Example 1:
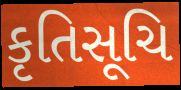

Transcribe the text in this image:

કૃતિસૂચિ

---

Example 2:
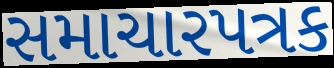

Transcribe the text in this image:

સમાચારપત્રક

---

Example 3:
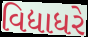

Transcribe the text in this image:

વિદ્યાધરે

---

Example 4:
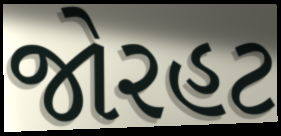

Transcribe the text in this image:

જોરહટ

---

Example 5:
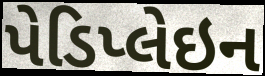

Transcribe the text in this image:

પેડિપ્લેઇન